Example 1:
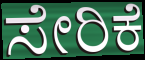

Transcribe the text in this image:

ಸೇರಿಕೆ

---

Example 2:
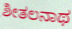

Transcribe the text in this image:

ಶೀತಲನಾಥ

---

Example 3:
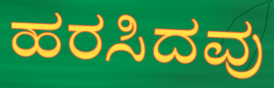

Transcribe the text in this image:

ಹರಸಿದವು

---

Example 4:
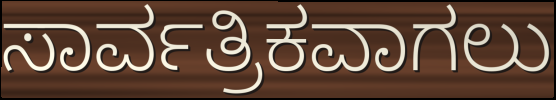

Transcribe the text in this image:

ಸಾರ್ವತ್ರಿಕವಾಗಲು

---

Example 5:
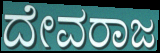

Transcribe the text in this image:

ದೇವರಾಜ